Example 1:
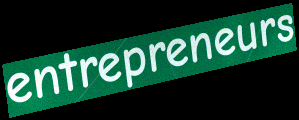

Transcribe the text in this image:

entrepreneurs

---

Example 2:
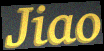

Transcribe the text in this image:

Jiao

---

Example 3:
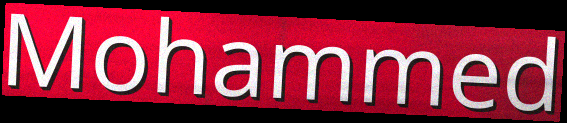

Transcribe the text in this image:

Mohammed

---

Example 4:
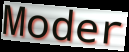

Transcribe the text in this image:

Moder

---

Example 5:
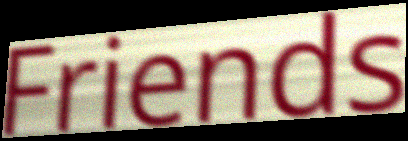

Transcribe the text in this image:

Friends